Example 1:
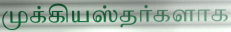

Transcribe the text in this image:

முக்கியஸ்தர்களாக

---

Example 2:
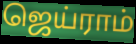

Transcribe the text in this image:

ஜெய்ராம்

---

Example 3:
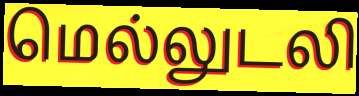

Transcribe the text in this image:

மெல்லுடலி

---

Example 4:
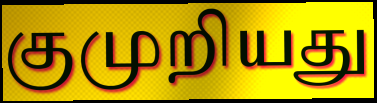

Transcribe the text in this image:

குமுறியது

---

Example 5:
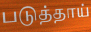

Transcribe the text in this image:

படுத்தாய்